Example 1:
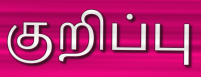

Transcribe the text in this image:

குறிப்பு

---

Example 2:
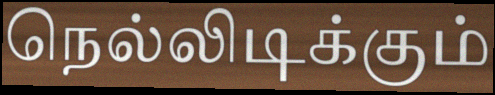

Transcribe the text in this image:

நெல்லிடிக்கும்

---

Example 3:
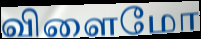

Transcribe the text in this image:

விளைமோ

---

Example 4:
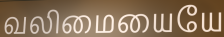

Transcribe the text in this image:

வலிமையையே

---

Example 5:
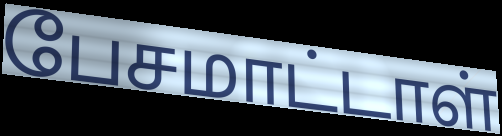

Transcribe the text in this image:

பேசமாட்டாள்